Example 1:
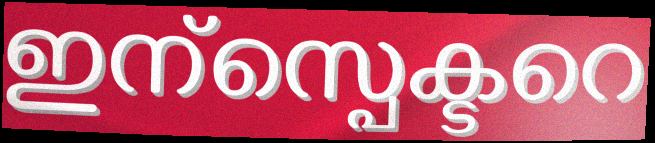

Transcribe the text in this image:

ഇന്സ്പെക്ടറെ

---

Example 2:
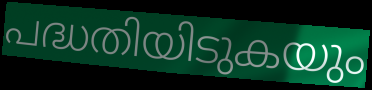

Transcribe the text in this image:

പദ്ധതിയിടുകയും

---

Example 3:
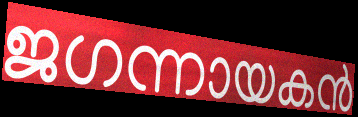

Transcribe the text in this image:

ജഗന്നായകൻ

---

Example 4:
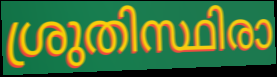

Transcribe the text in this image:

ശ്രുതിസ്ഥിരാ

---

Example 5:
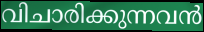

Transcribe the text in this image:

വിചാരിക്കുന്നവൻ